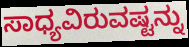
ಸಾಧ್ಯವಿರುವಷ್ಟನ್ನು